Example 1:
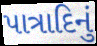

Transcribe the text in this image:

પાત્રાદિનું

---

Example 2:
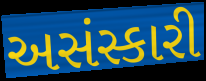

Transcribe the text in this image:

અસંસ્કારી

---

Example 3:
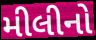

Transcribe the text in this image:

મીલીનો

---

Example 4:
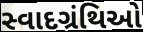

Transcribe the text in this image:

સ્વાદગ્રંથિઓ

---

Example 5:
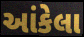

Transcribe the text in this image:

આંકેલા